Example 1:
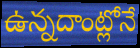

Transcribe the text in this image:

ఉన్నదాంట్లోనే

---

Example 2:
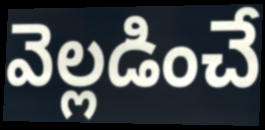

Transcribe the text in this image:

వెల్లడించే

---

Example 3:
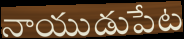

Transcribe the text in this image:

నాయుడుపేట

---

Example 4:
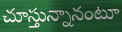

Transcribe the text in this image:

చూస్తున్నానంటూ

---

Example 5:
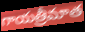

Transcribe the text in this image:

గాయత్రీమాత